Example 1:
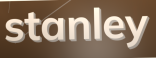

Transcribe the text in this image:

stanley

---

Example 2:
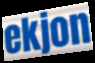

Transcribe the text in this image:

ekjon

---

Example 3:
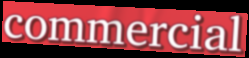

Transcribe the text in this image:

commercial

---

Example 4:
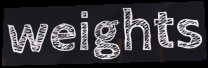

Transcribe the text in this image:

weights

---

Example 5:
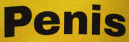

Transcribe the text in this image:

Penis